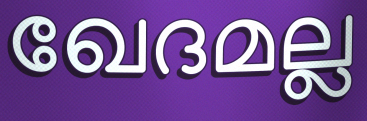
ഖേദമല്ല